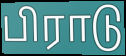
பிராடு